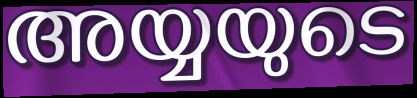
അയ്യയുടെ